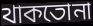
থাকতোনা